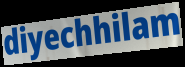
diyechhilam